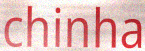
chinha